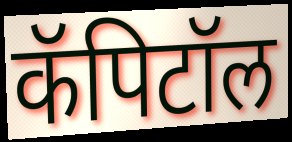
कॅपिटॉल